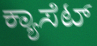
ಕ್ಯಾಸೆಟ್